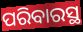
ପରିବାରସ୍ଥ